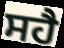
ਸਹੈ